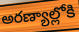
అరణ్యాల్లోకి